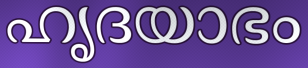
ഹൃദയാഭം